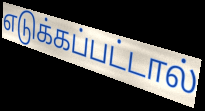
எடுக்கப்பட்டால்